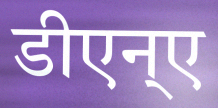
डीएन्ए